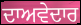
ਦਾਅਵੇਦਾਰ